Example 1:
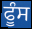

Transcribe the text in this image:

ਫੂੰਸ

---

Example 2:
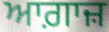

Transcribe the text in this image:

ਆਗ਼ਾਜ਼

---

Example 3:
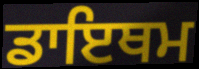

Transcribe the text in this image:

ਡਾਇਥਮ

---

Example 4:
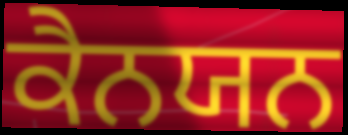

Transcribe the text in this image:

ਕੈਨਯਨ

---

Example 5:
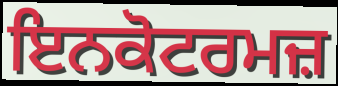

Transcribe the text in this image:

ਇਨਕੋਟਰਮਜ਼